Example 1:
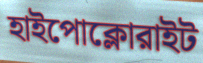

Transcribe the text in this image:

হাইপোক্লোরাইট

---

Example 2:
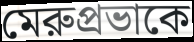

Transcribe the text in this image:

মেরুপ্রভাকে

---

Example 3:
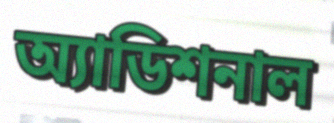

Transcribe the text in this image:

অ্যাডিশনাল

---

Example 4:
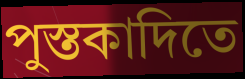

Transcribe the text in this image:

পুস্তকাদিতে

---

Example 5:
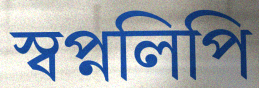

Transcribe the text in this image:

স্বপ্নলিপি